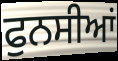
ਫੁਨਸੀਆਂ